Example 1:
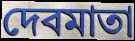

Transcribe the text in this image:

দেবমাতা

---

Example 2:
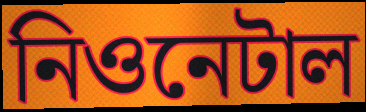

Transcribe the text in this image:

নিওনেটাল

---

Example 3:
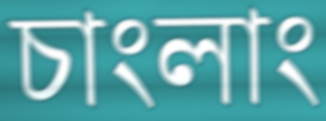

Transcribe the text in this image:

চাংলাং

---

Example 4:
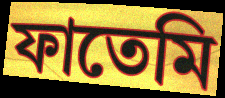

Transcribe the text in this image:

ফাতেমি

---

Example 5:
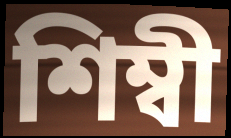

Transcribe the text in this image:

শিম্বী